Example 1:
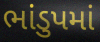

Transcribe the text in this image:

ભાંડુપમાં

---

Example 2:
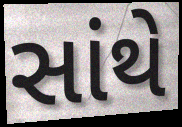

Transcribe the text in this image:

સાંથે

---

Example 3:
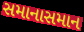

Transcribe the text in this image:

સમાનાસમાન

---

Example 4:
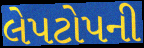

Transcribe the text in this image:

લેપટોપની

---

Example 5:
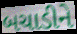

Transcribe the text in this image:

બચાડીને